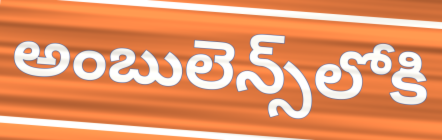
అంబులెన్స్‌లోకి